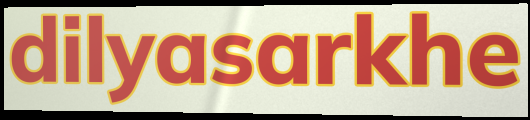
dilyasarkhe